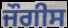
ਜੌਗੀਸ